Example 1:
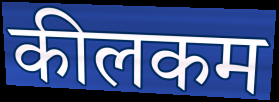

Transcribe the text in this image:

कीलकम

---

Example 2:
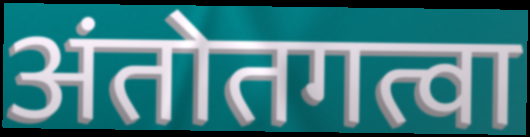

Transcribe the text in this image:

अंतोतगत्वा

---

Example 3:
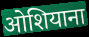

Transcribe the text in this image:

ओशियाना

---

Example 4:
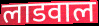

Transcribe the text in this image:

लाडवाल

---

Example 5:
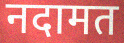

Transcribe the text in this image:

नदामत